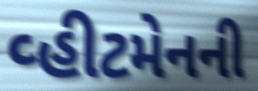
વ્હીટમેનની